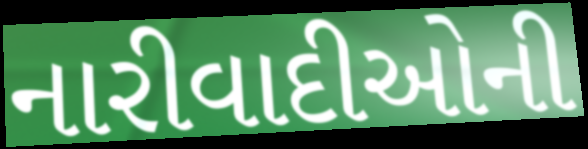
નારીવાદીઓની